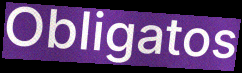
Obligatos